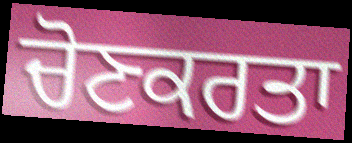
ਚੋਣਕਰਤਾ